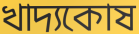
খাদ্যকোষ